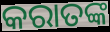
କରାତଙ୍କ